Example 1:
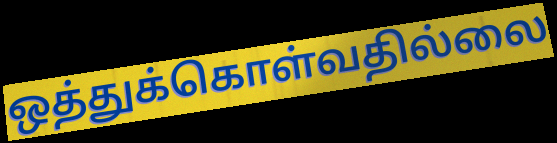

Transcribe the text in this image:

ஒத்துக்கொள்வதில்லை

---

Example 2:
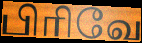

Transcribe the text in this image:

பிரிவே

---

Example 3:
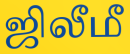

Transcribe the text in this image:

ஜிலீமீ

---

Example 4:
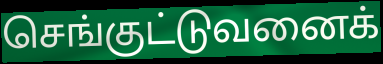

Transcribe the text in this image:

செங்குட்டுவனைக்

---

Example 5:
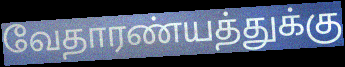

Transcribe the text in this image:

வேதாரண்யத்துக்கு